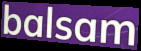
balsam